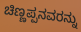
ಚಿಣ್ಣಪ್ಪನವರನ್ನು